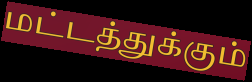
மட்டத்துக்கும்